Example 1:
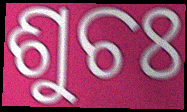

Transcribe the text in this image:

ଶୁଚଃ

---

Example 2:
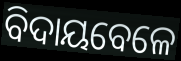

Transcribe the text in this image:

ବିଦାୟବେଳେ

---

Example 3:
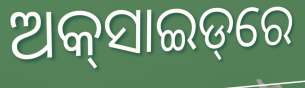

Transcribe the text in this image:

ଅକ୍‌ସାଇଡ୍‌ରେ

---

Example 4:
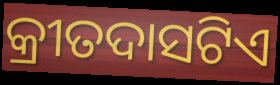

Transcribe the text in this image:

କ୍ରୀତଦାସଟିଏ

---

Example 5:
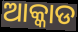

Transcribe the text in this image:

ଆକ୍କାଡ